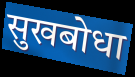
सुखबोधा